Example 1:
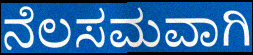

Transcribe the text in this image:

ನೆಲಸಮವಾಗಿ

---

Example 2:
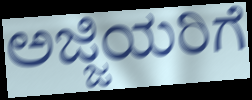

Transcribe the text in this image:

ಅಜ್ಜಿಯರಿಗೆ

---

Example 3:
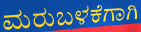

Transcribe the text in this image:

ಮರುಬಳಕೆಗಾಗಿ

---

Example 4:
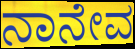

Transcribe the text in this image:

ನಾನೇವ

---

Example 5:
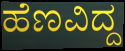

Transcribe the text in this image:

ಹೆಣವಿದ್ದ